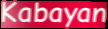
Kabayan